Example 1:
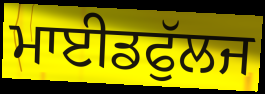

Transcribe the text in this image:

ਮਾਈਡਫੁੱਲਜ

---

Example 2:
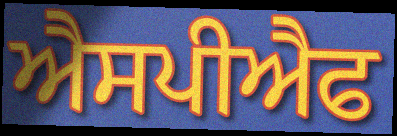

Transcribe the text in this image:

ਐਸਪੀਐਫ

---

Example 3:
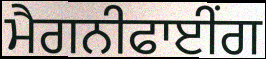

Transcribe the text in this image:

ਮੈਗਨੀਫਾਈਂਗ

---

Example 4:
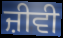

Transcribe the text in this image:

ਜ਼ੀਵੀ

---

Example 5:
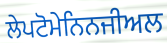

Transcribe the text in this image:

ਲੇਪਟੋਮੇਨਿਨਜੀਅਲ